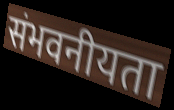
संभवनीयता